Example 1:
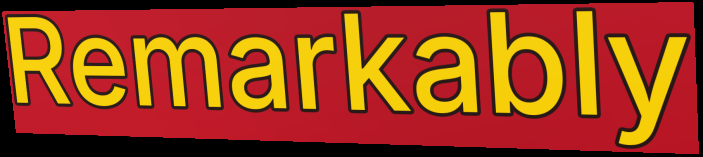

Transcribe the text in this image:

Remarkably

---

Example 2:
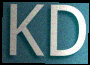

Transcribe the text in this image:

KD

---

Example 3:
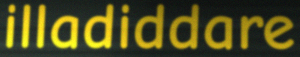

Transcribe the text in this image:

illadiddare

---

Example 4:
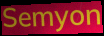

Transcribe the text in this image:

Semyon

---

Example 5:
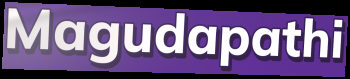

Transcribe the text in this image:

Magudapathi